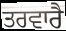
ਤਰਵਾਰੈ